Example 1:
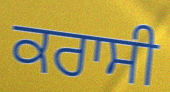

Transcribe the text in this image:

ਕਰਾਸੀ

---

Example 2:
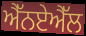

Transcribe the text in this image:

ਐੱਨਏਐੱਲ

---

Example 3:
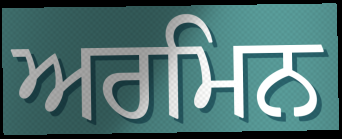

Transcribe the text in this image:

ਅਰਮਿਨ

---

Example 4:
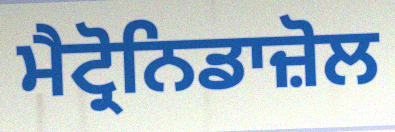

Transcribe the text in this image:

ਮੈਟ੍ਰੋਨਿਡਾਜ਼ੋਲ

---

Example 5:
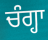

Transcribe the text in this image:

ਚੰਗ੍ਹਾ